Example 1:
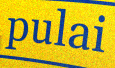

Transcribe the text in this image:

pulai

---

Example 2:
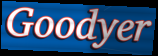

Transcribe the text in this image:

Goodyer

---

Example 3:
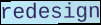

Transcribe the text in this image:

redesign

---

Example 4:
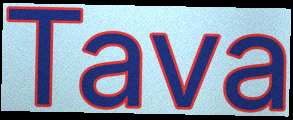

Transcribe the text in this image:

Tava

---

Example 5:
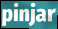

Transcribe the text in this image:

pinjar